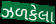
ઝળકેલા